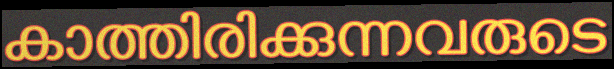
കാത്തിരിക്കുന്നവരുടെ